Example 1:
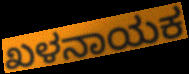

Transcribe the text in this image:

ಖಳನಾಯಕ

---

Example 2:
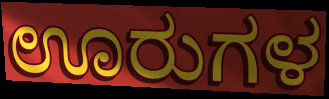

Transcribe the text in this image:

ಊರುಗಳ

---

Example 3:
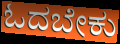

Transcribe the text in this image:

ಓದಬೇಕು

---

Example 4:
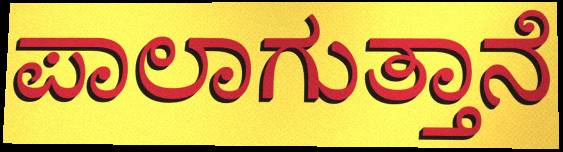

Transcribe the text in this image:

ಪಾಲಾಗುತ್ತಾನೆ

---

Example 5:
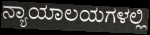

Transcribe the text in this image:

ನ್ಯಾಯಾಲಯಗಳಲ್ಲಿ